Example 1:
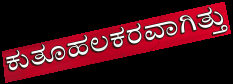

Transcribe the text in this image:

ಕುತೂಹಲಕರವಾಗಿತ್ತು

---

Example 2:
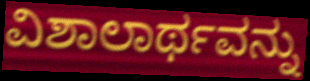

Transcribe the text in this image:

ವಿಶಾಲಾರ್ಥವನ್ನು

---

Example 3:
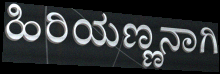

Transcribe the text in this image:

ಹಿರಿಯಣ್ಣನಾಗಿ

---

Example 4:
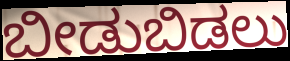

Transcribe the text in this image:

ಬೀಡುಬಿಡಲು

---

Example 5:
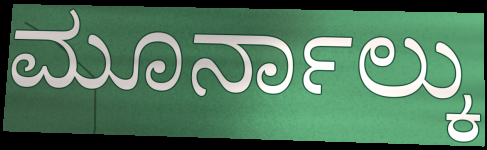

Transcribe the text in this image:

ಮೂರ್ನಾಲ್ಕು